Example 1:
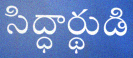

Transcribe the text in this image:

సిద్ధార్థుడి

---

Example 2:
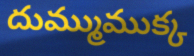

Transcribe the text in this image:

దుమ్ముముక్క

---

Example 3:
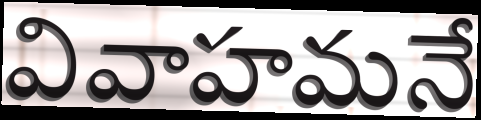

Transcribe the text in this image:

వివాహమనే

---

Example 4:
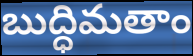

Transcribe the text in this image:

బుద్ధిమతాం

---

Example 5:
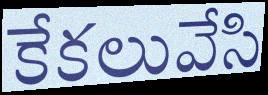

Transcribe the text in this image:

కేకలువేసి